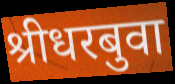
श्रीधरबुवा